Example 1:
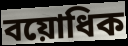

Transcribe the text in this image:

বয়োধিক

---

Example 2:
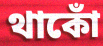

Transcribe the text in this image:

থাকোঁ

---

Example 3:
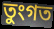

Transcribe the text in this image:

তুংগত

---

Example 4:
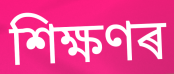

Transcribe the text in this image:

শিক্ষণৰ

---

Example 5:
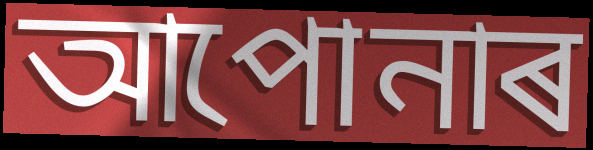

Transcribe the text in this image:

আপোনাৰ